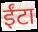
ईंटा